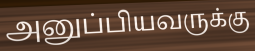
அனுப்பியவருக்கு